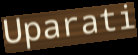
Uparati